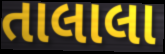
તાલાલા